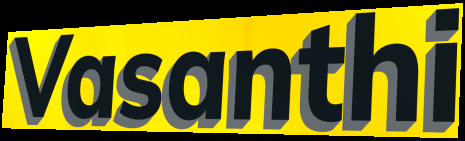
Vasanthi